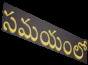
సమయంలో